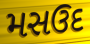
મસઉદ